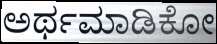
ಅರ್ಥಮಾಡಿಕೋ